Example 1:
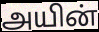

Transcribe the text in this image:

அயின்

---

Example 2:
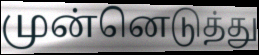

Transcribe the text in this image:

முன்னெடுத்து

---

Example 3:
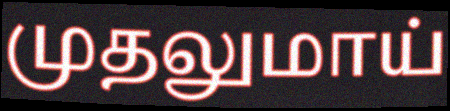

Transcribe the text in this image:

முதலுமாய்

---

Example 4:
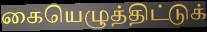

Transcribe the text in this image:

கையெழுத்திட்டுக்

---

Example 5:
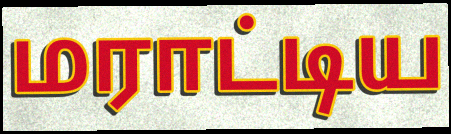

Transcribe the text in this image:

மராட்டிய